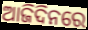
ଆଜିଦିନରେ